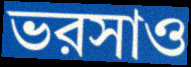
ভরসাও